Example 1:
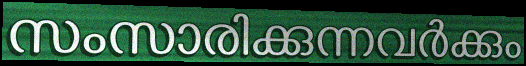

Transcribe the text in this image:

സംസാരിക്കുന്നവർക്കും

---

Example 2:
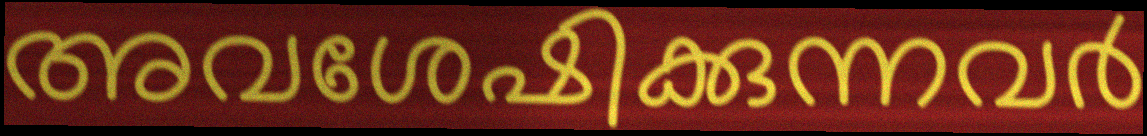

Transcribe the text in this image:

അവശേഷിക്കുന്നവർ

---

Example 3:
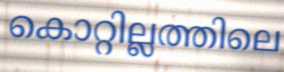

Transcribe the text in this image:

കൊറ്റില്ലത്തിലെ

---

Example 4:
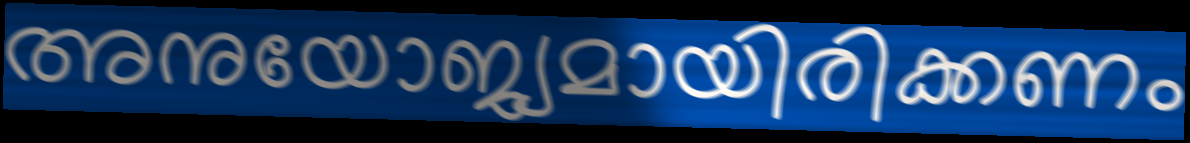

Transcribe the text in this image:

അനുയോജ്യമായിരിക്കണം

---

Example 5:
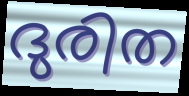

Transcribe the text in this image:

ദുരിത